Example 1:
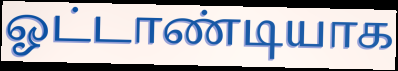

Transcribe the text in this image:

ஓட்டாண்டியாக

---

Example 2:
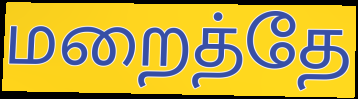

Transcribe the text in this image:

மறைத்தே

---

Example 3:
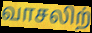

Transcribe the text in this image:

வாசலிற்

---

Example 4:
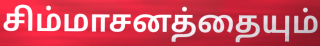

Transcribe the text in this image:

சிம்மாசனத்தையும்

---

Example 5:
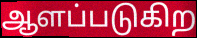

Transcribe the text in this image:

ஆளப்படுகிற